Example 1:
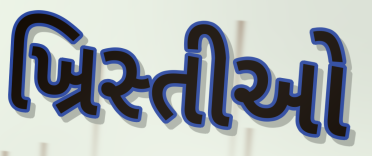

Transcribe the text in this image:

ખ્રિસ્તીઓ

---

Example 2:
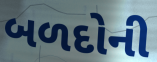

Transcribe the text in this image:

બળદોની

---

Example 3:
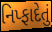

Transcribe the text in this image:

નિપ્ફાદેતું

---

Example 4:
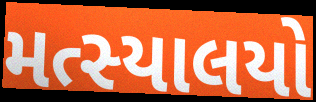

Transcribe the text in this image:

મત્સ્યાલયો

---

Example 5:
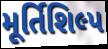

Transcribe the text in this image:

મૂર્તિશિલ્પ